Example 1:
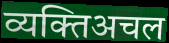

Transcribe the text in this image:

व्यक्तिअचल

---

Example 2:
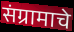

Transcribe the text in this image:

संग्रामाचे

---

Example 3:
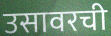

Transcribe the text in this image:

उसावरची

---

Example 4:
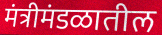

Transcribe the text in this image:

मंत्रीमंडळातील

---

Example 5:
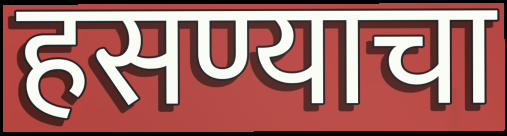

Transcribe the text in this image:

हसण्याचा